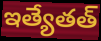
ఇత్యేతత్